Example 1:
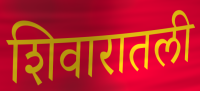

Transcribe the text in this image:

शिवारातली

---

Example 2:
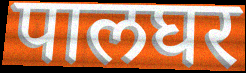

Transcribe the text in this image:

पालघर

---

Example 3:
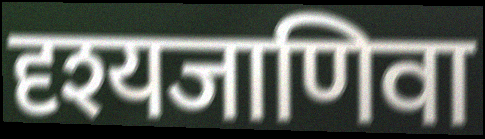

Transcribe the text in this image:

दृश्यजाणिवा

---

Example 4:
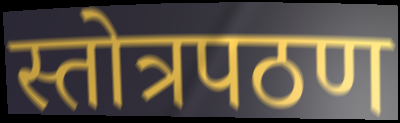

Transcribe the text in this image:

स्तोत्रपठण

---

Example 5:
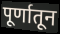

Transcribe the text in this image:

पूर्णातून